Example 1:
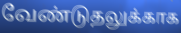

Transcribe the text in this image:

வேண்டுதலுக்காக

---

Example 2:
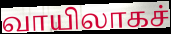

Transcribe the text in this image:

வாயிலாகச்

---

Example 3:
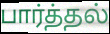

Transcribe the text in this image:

பார்த்தல்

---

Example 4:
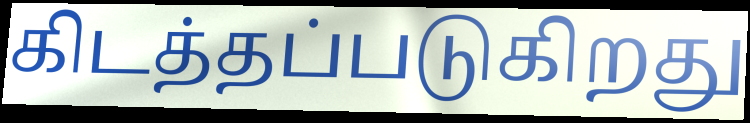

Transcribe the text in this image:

கிடத்தப்படுகிறது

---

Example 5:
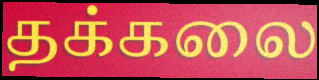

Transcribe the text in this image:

தக்கலை